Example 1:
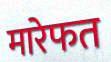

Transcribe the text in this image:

मारेफत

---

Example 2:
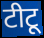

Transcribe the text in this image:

टीटू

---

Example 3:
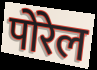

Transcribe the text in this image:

पोरेल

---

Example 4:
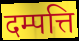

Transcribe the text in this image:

दम्पत्ति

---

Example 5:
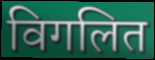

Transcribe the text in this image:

विगलित